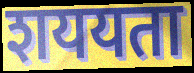
शययता